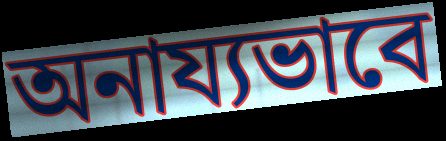
অনায্যভাবে